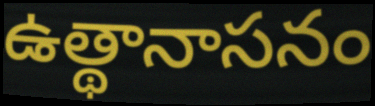
ఉత్థానాసనం